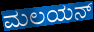
ಮಲಯನ್